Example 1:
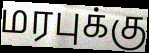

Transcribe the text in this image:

மரபுக்கு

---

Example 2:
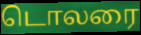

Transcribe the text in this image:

டொலரை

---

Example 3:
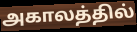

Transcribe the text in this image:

அகாலத்தில்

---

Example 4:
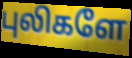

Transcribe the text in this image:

புலிகளே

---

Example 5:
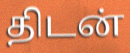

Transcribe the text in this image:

திடன்